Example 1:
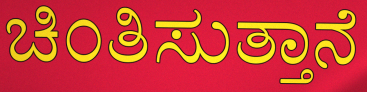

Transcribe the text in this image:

ಚಿಂತಿಸುತ್ತಾನೆ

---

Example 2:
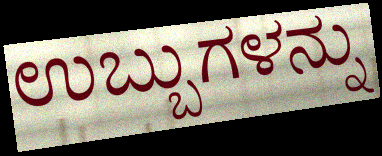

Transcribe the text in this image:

ಉಬ್ಬುಗಳನ್ನು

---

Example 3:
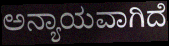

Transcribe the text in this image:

ಅನ್ಯಾಯವಾಗಿದೆ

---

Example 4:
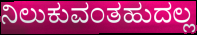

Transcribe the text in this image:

ನಿಲುಕುವಂತಹುದಲ್ಲ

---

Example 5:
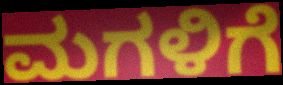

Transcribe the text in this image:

ಮಗಳಿಗೆ